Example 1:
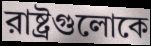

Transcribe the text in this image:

রাষ্ট্রগুলোকে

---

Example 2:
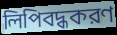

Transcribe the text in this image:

লিপিবদ্ধকরণ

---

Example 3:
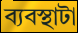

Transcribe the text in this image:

ব্যবস্থাটা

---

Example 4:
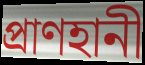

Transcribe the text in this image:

প্রাণহানী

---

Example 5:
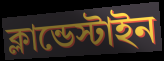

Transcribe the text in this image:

ক্লান্ডেস্টাইন